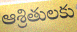
ఆశ్రితులకు